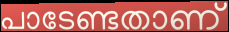
പാടേണ്ടതാണ്